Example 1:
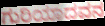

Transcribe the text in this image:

ಗುರಿಯಾದವನ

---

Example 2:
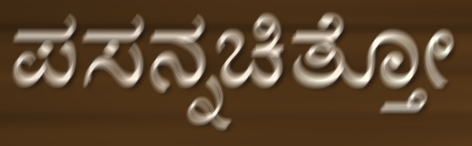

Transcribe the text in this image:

ಪಸನ್ನಚಿತ್ತೋ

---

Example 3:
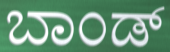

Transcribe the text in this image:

ಬಾಂಡ್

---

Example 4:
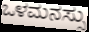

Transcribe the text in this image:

ಒಳಮನಸ್ಸು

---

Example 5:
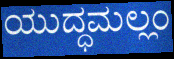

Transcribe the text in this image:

ಯುದ್ಧಮಲ್ಲಂ